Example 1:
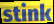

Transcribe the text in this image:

stink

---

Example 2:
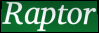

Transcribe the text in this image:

Raptor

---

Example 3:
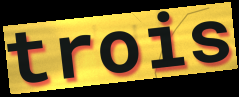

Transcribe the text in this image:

trois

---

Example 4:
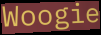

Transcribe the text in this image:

Woogie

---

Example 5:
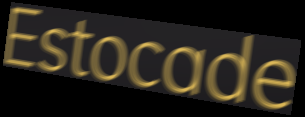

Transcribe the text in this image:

Estocade